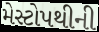
મેસ્ટોપથીની